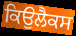
ਕਿਉਲੈਕਸ